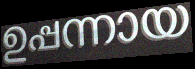
ഉപ്പന്നായ